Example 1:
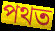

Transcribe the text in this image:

পথত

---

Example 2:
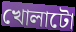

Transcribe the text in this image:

খোলাটো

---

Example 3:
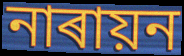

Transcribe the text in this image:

নাৰায়ন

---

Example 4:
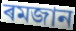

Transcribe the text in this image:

ৰমজান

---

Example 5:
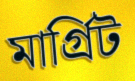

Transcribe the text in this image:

মাৰ্গ্ৰিট